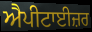
ਐਪੀਟਾਈਜ਼ਰ